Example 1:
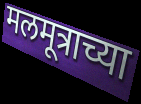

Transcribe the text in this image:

मलमूत्राच्या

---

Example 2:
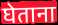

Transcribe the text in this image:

घेताना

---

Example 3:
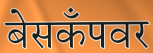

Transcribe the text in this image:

बेसकॅंपवर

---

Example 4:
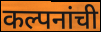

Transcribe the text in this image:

कल्पनांची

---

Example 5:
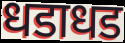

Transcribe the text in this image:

धडाधड